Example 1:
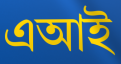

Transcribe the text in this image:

এআই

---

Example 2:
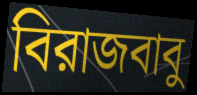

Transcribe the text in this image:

বিরাজবাবু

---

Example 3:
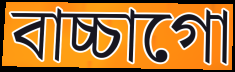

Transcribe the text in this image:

বাচ্চাগো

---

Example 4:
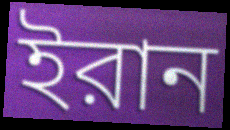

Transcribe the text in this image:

ইরান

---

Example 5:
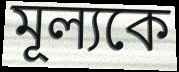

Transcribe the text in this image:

মূল্যকে